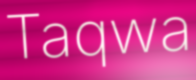
Taqwa